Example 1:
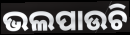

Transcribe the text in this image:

ଭଲପାଉଚି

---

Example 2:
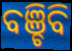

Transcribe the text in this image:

ବଞ୍ଚିବି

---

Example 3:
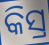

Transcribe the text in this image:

କିସ୍ର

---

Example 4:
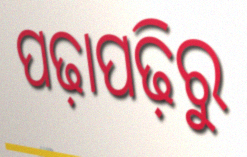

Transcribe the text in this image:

ପଢ଼ାପଢ଼ିରୁ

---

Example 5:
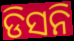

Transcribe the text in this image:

ଡିସନି